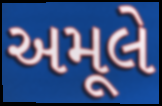
અમૂલે